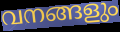
വനങ്ങളും